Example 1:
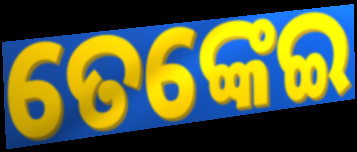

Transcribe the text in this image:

ତେଙ୍କେଇ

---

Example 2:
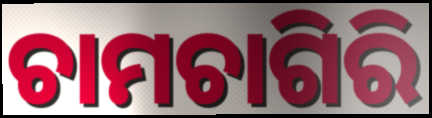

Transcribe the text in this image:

ଚାମଚାଗିରି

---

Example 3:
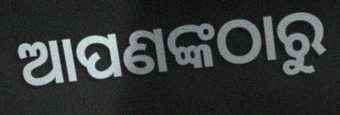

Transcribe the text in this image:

ଆପଣଙ୍କଠାରୁ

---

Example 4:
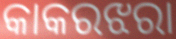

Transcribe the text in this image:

କାକରଝରା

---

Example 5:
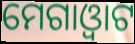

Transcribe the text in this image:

ମେଗାଓ୍ୱାଟ